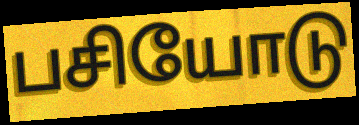
பசியோடு